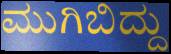
ಮುಗಿಬಿದ್ದು